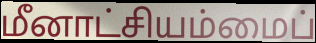
மீனாட்சியம்மைப்